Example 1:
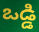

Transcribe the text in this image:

ఒడ్డి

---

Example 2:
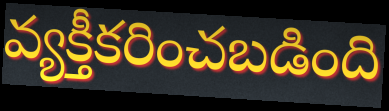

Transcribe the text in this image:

వ్యక్తీకరించబడింది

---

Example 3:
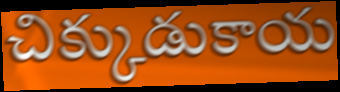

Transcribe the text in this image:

చిక్కుడుకాయ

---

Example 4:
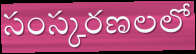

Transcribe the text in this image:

సంస్కరణలలో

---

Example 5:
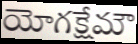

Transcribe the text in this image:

యోగక్షేమౌ